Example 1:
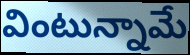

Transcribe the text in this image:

వింటున్నామే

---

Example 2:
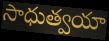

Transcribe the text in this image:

సాధుత్వయా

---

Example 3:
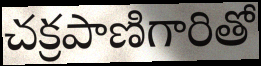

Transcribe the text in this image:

చక్రపాణిగారితో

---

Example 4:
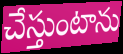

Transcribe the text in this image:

చేస్తుంటాను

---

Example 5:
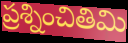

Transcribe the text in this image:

ప్రశ్నించితిమి